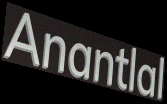
Anantlal